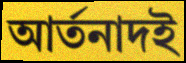
আর্তনাদই